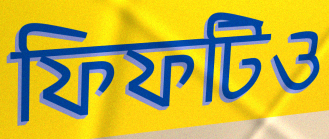
ফিফটিও